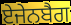
ਏਜੇਨਬੈਗ